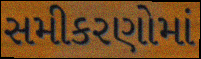
સમીકરણોમાં